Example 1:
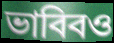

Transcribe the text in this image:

ভাবিবও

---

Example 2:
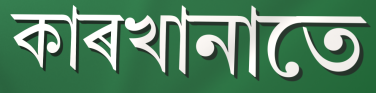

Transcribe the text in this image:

কাৰখানাতে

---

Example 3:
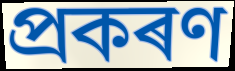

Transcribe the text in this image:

প্ৰকৰণ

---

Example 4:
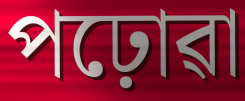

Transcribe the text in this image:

পঢ়োৱা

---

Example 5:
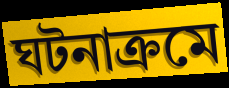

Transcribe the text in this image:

ঘটনাক্ৰমে